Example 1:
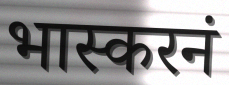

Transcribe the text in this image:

भास्करनं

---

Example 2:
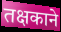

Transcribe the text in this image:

तक्षकाने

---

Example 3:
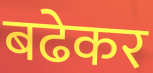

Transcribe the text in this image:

बढेकर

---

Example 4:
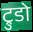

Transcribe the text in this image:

ट्रुडो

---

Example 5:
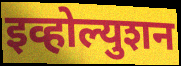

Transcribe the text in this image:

इव्होल्युशन